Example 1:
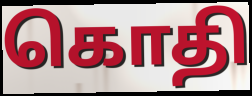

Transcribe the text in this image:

கொதி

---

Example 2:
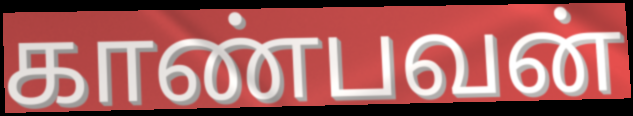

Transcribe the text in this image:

காண்பவன்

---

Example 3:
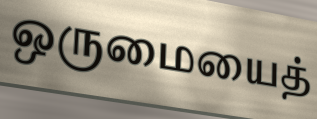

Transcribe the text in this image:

ஒருமையைத்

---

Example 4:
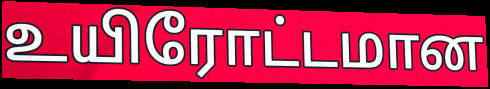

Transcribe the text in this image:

உயிரோட்டமான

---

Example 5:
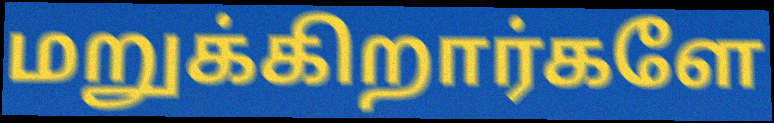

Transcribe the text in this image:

மறுக்கிறார்களே